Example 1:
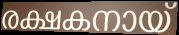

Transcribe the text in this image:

രക്ഷകനായ്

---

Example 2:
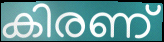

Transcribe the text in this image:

കിരണ്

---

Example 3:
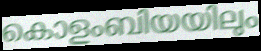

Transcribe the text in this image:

കൊളംബിയയിലും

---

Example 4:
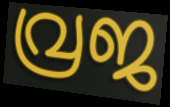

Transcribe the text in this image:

വ്രജ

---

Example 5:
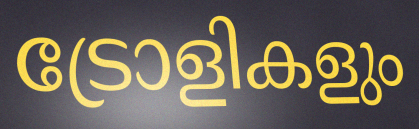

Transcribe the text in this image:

ട്രോളികളും